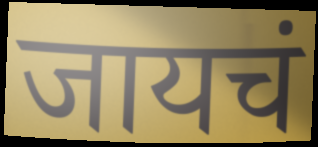
जायचं